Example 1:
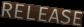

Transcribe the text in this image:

RELEASE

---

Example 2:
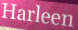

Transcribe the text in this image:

Harleen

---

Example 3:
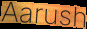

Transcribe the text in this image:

Aarush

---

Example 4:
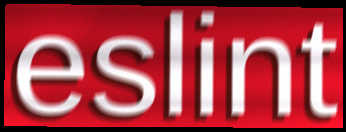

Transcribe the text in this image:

eslint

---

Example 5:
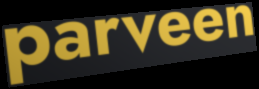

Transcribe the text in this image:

parveen